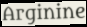
Arginine